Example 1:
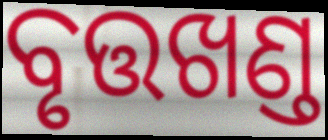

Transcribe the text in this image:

ବୃତ୍ତଖଣ୍ଡ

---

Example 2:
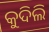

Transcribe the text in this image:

କୁଦିଲି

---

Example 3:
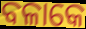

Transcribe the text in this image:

ବଳାକେ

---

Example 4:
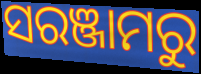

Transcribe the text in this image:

ସରଞ୍ଜାମରୁ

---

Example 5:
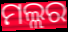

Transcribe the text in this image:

ମଲ୍ଲର